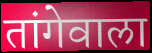
तांगेवाला